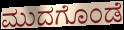
ಮುದಗೊಂಡೆ